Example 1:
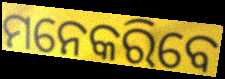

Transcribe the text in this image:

ମନେକରିବେ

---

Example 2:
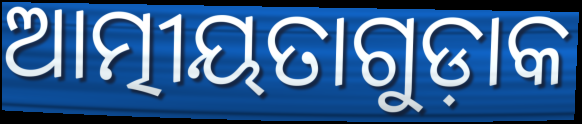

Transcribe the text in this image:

ଆତ୍ମୀୟତାଗୁଡ଼ାକ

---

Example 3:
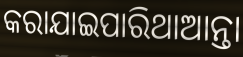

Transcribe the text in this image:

କରାଯାଇପାରିଥାଆନ୍ତା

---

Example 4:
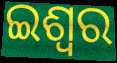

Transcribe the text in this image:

ଇଶ୍ଵର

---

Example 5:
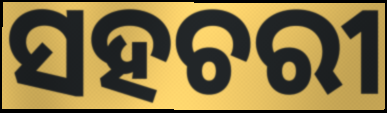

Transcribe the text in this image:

ସହଚରୀ